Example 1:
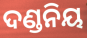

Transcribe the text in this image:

ଦଣ୍ଡନିୟ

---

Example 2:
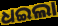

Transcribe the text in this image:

ଧଇଲା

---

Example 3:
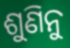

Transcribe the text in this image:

ଶୁଣିନୁ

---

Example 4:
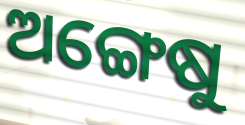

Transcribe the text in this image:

ଅଙ୍ଗେଷୁ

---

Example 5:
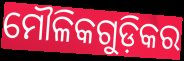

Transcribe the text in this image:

ମୌଳିକଗୁଡ଼ିକର